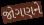
જોગણને